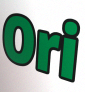
Ori